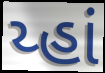
ય્હાં